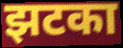
झटका